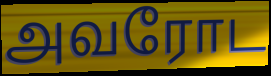
அவரோட